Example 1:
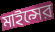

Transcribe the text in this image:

মাইন্সের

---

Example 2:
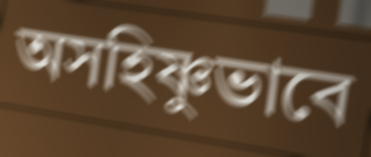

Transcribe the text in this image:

অসহিষ্ণুভাবে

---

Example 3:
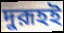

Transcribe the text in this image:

দুরূহই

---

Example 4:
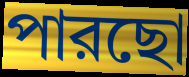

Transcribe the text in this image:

পারছো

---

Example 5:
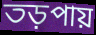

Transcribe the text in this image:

তড়পায়